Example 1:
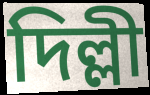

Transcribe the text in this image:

দিল্লী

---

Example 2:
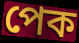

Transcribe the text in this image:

পেক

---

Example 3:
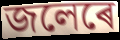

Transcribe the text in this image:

জলেৰে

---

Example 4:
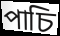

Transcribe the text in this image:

পাচি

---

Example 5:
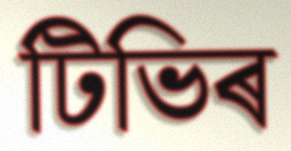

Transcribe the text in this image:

টিভিৰ